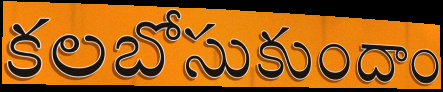
కలబోసుకుందాం